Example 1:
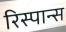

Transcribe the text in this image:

रिस्पान्स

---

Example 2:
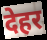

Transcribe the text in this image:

देहर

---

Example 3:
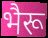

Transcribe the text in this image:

भैरू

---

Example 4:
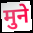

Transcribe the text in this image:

मुने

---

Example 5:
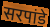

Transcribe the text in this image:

सरपांडे